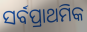
ସର୍ବପ୍ରାଥମିକ